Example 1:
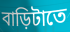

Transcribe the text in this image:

বাড়িটাতে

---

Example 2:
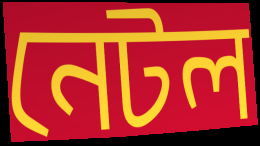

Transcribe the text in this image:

নেটল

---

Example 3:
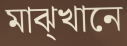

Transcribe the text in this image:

মাঝ্খানে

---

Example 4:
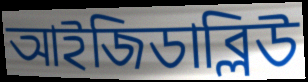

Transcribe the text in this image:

আইজিডাব্লিউ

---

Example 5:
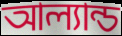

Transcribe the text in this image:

আল্যান্ড